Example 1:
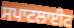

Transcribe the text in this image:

ਸਪਾਟਲਾਈਟ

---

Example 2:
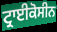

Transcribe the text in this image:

ਟ੍ਰਾਈਕੋਸੀਨ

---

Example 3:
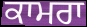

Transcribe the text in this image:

ਕਾਮਰਾ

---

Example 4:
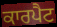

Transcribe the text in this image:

ਕਾਰਪੈਟ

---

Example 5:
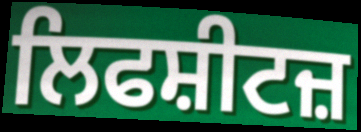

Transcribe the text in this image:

ਲਿਫਸ਼ੀਟਜ਼